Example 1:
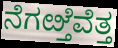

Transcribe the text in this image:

ನೆಗೞ್ತೆವೆತ್ತ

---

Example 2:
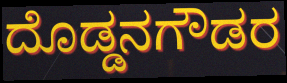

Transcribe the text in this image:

ದೊಡ್ಡನಗೌಡರ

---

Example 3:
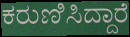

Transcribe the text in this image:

ಕರುಣಿಸಿದ್ದಾರೆ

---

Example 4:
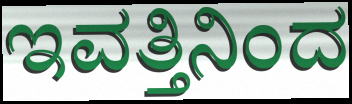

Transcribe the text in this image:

ಇವತ್ತಿನಿಂದ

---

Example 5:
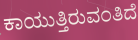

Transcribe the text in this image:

ಕಾಯುತ್ತಿರುವಂತಿದೆ